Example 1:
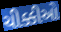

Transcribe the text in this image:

ચીક્કીઓ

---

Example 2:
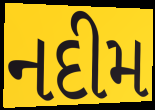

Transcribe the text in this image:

નદીમ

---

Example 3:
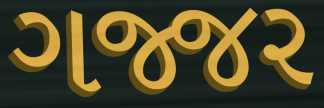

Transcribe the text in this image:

ગજ્જર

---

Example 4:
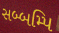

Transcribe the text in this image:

સબ્બમ્પિ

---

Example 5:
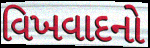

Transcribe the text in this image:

વિખવાદનો